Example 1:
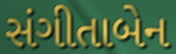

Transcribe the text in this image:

સંગીતાબેન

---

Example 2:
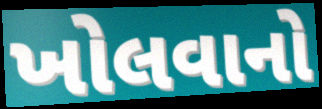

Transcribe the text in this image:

ખોલવાનો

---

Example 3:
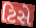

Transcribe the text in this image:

ટિસે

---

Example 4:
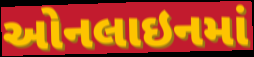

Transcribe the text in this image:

ઓનલાઇનમાં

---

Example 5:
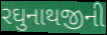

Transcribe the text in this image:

રઘુનાથજીની